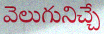
వెలుగునిచ్చే